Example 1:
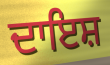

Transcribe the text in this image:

ਦਾਇਸ਼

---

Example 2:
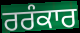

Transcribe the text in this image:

ਰਰੰਕਾਰ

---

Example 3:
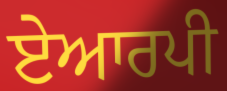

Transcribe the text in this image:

ਏਆਰਪੀ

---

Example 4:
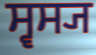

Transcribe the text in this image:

ਸ੍ਵਸ੍ਯ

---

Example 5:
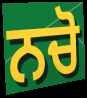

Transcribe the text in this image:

ਨਚੋ